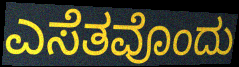
ಎಸೆತವೊಂದು